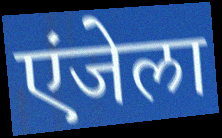
एंजेला